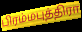
பிரம்மபுத்திரா